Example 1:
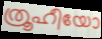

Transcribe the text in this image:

ത്രൂഹീയോ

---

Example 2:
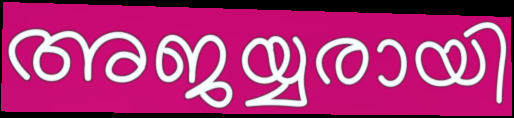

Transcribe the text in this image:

അജയ്യരായി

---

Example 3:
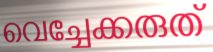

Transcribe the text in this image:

വെച്ചേക്കരുത്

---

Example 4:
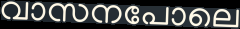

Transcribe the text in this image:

വാസനപോലെ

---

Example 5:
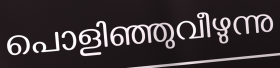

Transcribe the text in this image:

പൊളിഞ്ഞുവീഴുന്നു